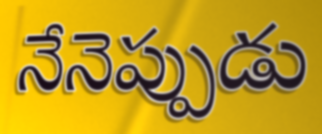
నేనెప్పుడు